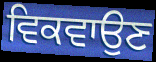
ਵਿਕਵਾਉਣ